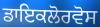
ਡਾਇਕਲੋਰਵੋਸ